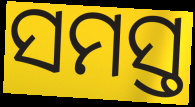
ସମସ୍ତ